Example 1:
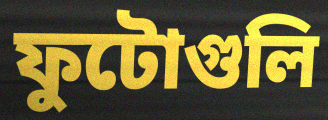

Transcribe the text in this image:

ফুটোগুলি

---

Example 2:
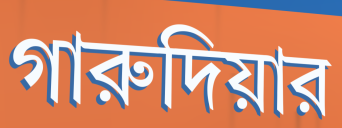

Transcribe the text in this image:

গারুদিয়ার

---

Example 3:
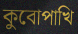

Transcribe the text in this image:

কুবোপাখি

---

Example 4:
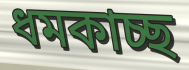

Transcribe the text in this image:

ধমকাচ্ছ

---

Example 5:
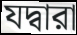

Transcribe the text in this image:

যদ্বারা